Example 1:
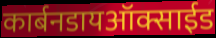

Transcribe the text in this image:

कार्बनडायऑक्साईड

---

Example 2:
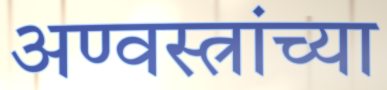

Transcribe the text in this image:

अण्वस्त्रांच्या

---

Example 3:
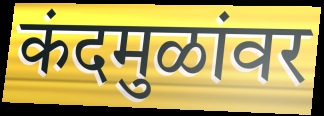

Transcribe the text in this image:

कंदमुळांवर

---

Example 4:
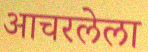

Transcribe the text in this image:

आचरलेला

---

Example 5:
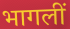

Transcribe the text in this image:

भागलीं